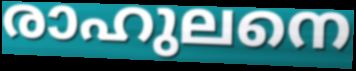
രാഹുലനെ